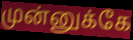
முன்னுக்கே